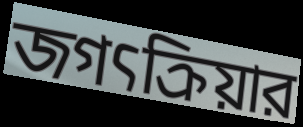
জগৎক্রিয়ার